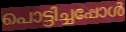
പൊട്ടിച്ചപ്പോൾ